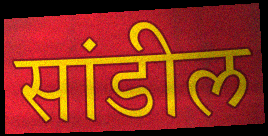
सांडील